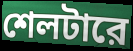
শেলটারে